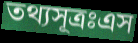
তথ্যসূত্রঃএস